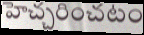
హెచ్చరించటం